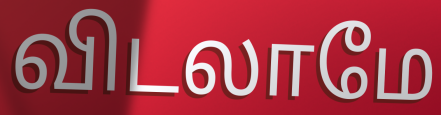
விடலாமே